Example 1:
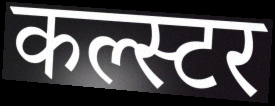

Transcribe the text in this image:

कल्स्टर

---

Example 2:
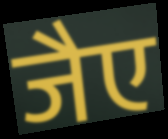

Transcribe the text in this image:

जैए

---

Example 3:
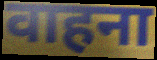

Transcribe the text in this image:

वाहना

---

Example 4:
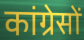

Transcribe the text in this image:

कांग्रेसों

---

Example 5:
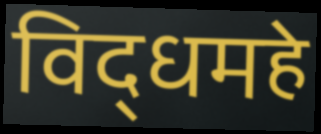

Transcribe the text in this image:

विद्धमहे